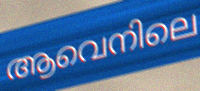
ആവെനിലെ